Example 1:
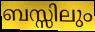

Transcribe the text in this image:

ബസ്സിലും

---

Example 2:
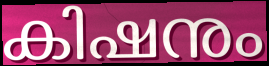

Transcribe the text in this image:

കിഷനും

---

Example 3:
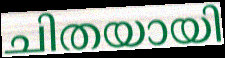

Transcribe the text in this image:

ചിതയായി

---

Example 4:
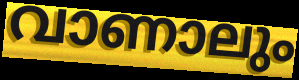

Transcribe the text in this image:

വാണാലും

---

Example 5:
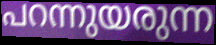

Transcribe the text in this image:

പറന്നുയരുന്ന